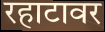
रहाटावर